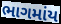
ભાગમાંય